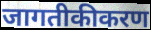
जागतीकीकरण